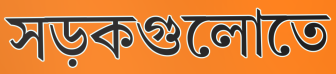
সড়কগুলোতে